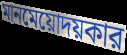
মানমেয়োদয়কার